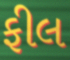
ફીલ